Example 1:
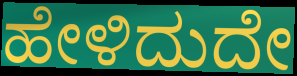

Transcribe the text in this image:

ಹೇಳಿದುದೇ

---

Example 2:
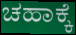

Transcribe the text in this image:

ಚಹಾಕ್ಕೆ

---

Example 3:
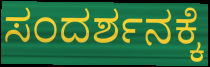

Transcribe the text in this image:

ಸಂದರ್ಶನಕ್ಕೆ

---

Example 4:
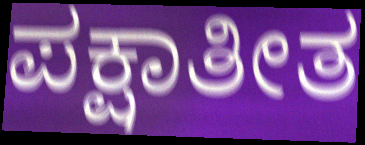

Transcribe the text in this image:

ಪಕ್ಷಾತೀತ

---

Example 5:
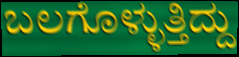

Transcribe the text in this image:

ಬಲಗೊಳ್ಳುತ್ತಿದ್ದು